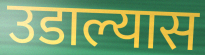
उडाल्यास